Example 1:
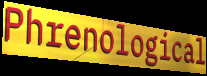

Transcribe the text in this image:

Phrenological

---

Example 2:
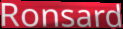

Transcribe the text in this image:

Ronsard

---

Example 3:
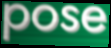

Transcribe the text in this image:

pose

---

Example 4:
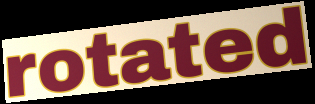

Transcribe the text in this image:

rotated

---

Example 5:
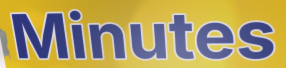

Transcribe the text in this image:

Minutes